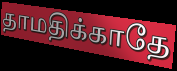
தாமதிக்காதே